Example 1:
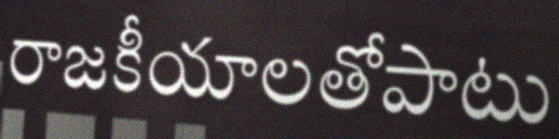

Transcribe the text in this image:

రాజకీయాలతోపాటు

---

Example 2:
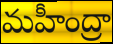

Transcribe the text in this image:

మహీంద్రా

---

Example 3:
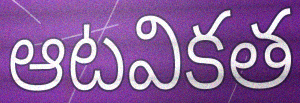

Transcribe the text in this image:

ఆటవికత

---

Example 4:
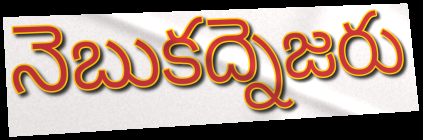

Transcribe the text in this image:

నెబుకద్నెజరు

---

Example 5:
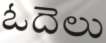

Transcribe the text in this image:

ఓదెలు